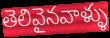
తెలివైనవాళ్ళు